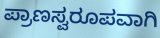
ಪ್ರಾಣಸ್ವರೂಪವಾಗಿ